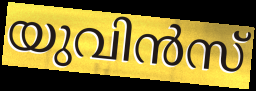
യുവിൻസ്